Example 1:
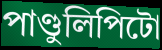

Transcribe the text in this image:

পাণ্ডুলিপিটো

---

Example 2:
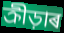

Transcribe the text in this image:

ক্ৰীড়াৰ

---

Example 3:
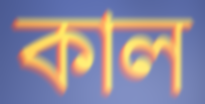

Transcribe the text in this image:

কাল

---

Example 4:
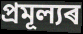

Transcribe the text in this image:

প্ৰমূল্যৰ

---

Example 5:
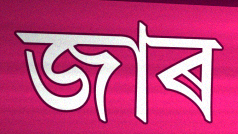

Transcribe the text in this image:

জাৰ